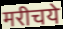
मरीचये